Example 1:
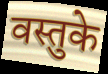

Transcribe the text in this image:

वस्तुके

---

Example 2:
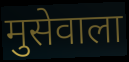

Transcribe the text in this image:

मुसेवाला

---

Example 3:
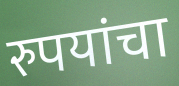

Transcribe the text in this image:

रुपयांचा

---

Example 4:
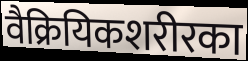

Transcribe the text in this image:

वैक्रियिकशरीरका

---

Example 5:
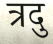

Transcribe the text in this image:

त्रदु